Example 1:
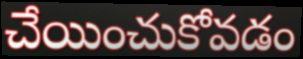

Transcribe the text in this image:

చేయించుకోవడం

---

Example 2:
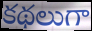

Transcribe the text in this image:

కథలుగా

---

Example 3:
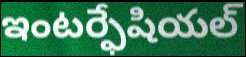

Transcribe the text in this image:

ఇంటర్ఫేషియల్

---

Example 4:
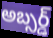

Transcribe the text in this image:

అబ్సర్డ్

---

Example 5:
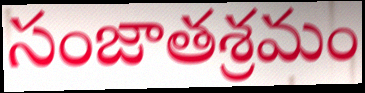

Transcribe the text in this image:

సంజాతశ్రమం